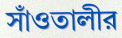
সাঁওতালীর